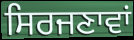
ਸਿਰਜਣਾਵਾਂ